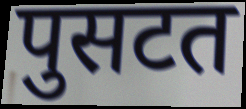
पुसटत